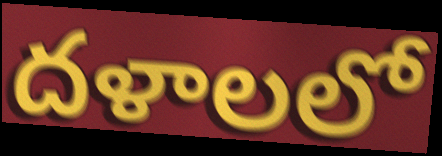
దళాలలో